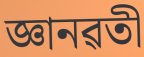
জ্ঞানৱতী